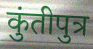
कुंतीपुत्र